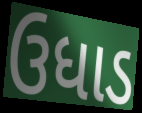
ઉધાડ